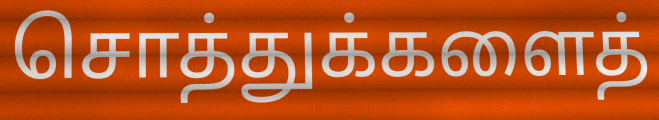
சொத்துக்களைத்